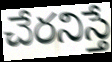
చేరనిస్తే